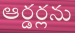
ఆర్డర్లను